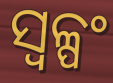
ସ୍ୱଳ୍ପଂ